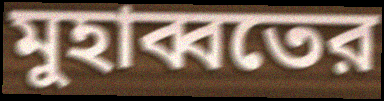
মুহাব্বতের